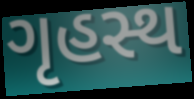
ગૃહસ્થ